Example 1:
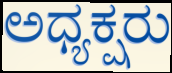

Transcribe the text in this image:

ಅಧ್ಯಕ್ಷರು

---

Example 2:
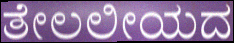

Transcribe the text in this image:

ತೇಲಲೀಯದ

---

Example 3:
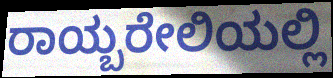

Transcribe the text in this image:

ರಾಯ್ಬರೇಲಿಯಲ್ಲಿ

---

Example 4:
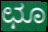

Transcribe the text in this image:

ಛೂ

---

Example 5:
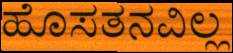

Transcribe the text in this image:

ಹೊಸತನವಿಲ್ಲ